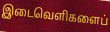
இடைவெளிகளைப்